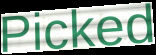
Picked